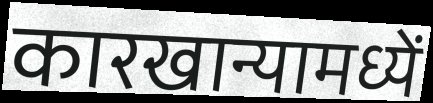
कारखान्यामध्यें